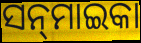
ସନ୍‌ମାଇକା